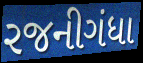
રજનીગંધા